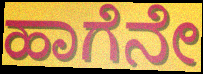
ಹಾಗೆನೇ